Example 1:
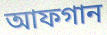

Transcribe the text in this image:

আফগান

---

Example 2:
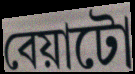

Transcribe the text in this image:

বেয়াটো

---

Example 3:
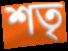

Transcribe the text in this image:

শতৃ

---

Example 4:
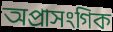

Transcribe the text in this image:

অপ্ৰাসংগিক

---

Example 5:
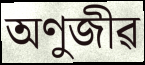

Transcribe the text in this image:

অণুজীৱ